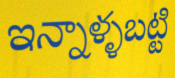
ఇన్నాళ్ళబట్టి